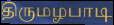
திருமழபாடி